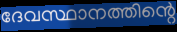
ദേവസ്ഥാനത്തിന്റെ